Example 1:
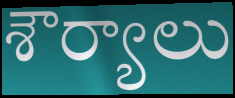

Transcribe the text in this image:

శౌర్యాలు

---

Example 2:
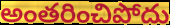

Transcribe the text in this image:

అంతరించిపోదు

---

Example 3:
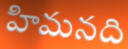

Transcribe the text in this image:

హిమనది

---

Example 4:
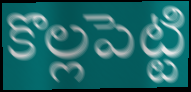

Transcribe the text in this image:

కొల్లపెట్టి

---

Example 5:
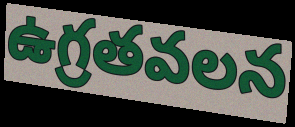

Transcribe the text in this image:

ఉగ్రతవలన